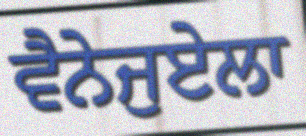
ਵੈਨੇਜੁਏਲਾ